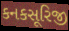
કનકસૂરિજી